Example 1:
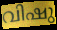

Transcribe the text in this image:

വിഷു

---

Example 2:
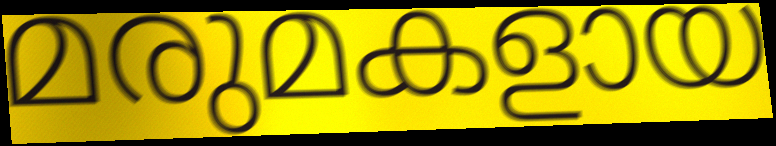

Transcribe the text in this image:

മരുമകളായ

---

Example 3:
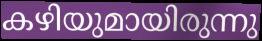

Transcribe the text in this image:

കഴിയുമായിരുന്നു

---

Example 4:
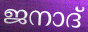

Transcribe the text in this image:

ജനാദ്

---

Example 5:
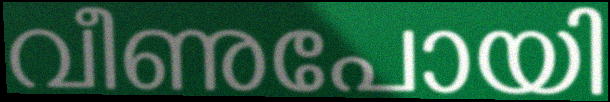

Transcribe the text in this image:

വീണുപോയി